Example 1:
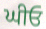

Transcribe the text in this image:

ਘੀਓ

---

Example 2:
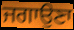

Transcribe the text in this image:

ਜਗਾਉਣਾ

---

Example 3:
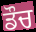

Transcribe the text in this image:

ਡੌਚ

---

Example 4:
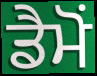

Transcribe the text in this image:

ਡੈਮੋਂ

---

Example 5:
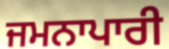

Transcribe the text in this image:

ਜਮਨਾਪਾਰੀ